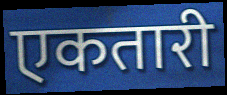
एकतारी